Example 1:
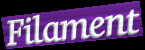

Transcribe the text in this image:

Filament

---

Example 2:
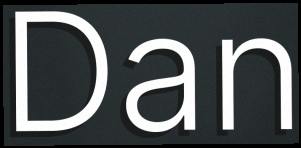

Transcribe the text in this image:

Dan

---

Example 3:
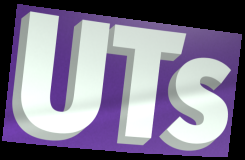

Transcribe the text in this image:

UTs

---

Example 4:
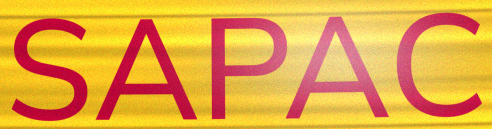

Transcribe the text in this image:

SAPAC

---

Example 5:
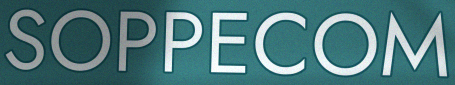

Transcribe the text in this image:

SOPPECOM